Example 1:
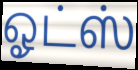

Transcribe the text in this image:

ஓட்ஸ்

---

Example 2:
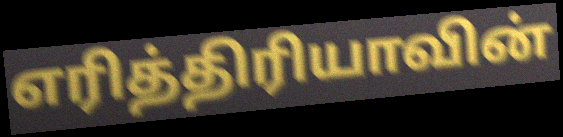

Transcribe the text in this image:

எரித்திரியாவின்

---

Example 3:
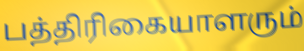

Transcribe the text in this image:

பத்திரிகையாளரும்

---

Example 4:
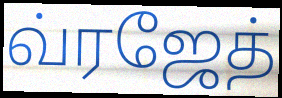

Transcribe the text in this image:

வ்ரஜேத்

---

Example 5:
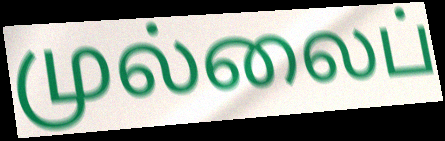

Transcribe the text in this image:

முல்லைப்